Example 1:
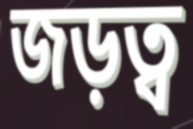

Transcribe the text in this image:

জড়ত্ব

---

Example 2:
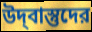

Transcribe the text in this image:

উদ্‌বাস্তুদের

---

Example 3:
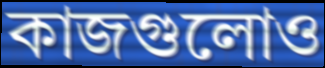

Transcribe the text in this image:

কাজগুলোও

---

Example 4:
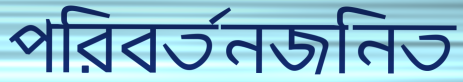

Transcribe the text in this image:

পরিবর্তনজনিত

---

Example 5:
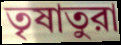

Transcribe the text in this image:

তৃষাতুরা